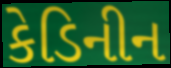
કેડિનીન